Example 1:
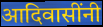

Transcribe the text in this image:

आदिवासींनी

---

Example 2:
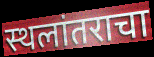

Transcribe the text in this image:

स्थलांतराचा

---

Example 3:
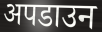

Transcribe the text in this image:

अपडाउन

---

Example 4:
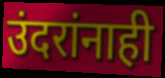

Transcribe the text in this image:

उंदरांनाही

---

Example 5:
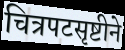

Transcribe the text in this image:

चित्रपटसृष्टीने